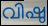
വിഷു